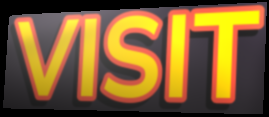
VISIT